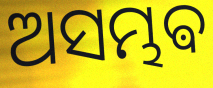
ଅସମ୍ଭଵ